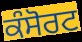
ਕੰਸੋਰਟ